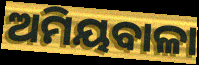
ଅମିୟବାଳା